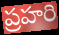
ప్రహరి